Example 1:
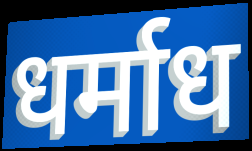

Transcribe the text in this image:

धर्माध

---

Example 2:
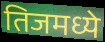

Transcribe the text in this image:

तिजमध्ये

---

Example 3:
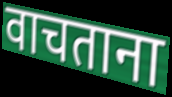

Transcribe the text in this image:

वाचताना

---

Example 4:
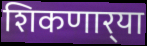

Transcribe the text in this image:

शिकणार्‍या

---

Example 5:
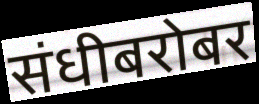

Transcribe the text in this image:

संधीबरोबर